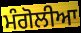
ਮੰਗੋਲੀਆ